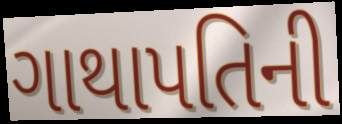
ગાથાપતિની